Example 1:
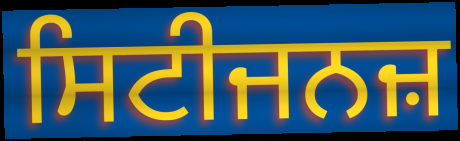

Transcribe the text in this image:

ਸਿਟੀਜਨਜ਼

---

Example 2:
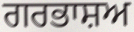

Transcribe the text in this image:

ਗਰਭਾਸ਼ਅ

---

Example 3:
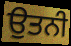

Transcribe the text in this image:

ਉਤਨੀ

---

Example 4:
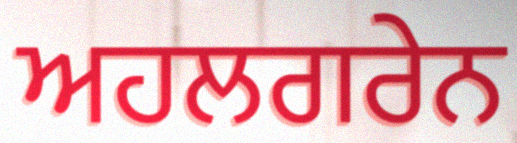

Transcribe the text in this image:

ਅਹਲਗਰੇਨ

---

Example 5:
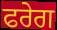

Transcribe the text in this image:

ਫਰੇਗ